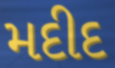
મદીદ